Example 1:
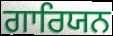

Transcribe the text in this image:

ਗਾਰਿਯਨ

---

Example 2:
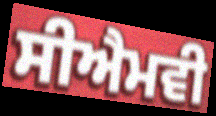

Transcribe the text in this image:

ਸੀਐਮਵੀ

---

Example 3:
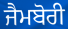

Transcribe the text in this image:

ਜੈਮਬੋਰੀ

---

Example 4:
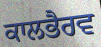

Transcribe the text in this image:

ਕਾਲਭੈਰਵ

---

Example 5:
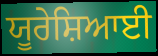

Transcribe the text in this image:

ਯੂਰੇਸ਼ਿਆਈ